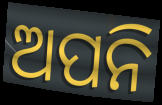
ଅପନି